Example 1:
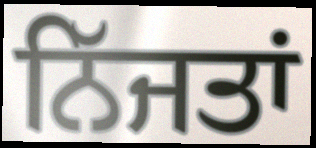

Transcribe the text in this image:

ਨਿੱਜਤਾਂ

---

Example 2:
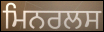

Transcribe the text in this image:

ਮਿਨਰਲਸ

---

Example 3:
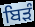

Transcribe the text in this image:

ਬਿੜੰ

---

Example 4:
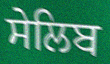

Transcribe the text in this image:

ਸੇਲਿਬ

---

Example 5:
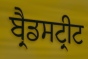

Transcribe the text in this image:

ਬ੍ਰੈਡਸਟ੍ਰੀਟ